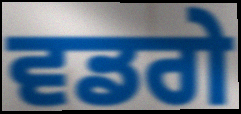
ਵਡਗੇ